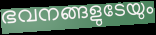
ഭവനങ്ങളുടേയും